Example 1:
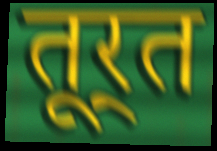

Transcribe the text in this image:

तूर्त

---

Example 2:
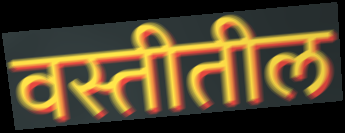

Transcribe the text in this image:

वस्तीतील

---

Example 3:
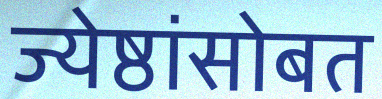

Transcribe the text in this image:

ज्येष्ठांसोबत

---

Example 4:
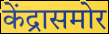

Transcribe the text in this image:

केंद्रासमोर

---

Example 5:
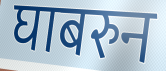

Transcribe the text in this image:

घाबरुन